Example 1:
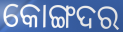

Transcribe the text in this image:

କୋଙ୍ଗଦର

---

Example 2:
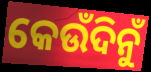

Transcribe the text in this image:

କେଉଁଦିନୁଁ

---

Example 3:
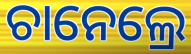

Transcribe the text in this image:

ଚାନେଲ୍ରେ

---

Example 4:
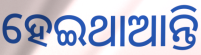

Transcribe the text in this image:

ହେଇଥାଆନ୍ତି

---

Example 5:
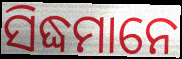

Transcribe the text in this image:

ସିଦ୍ଧମାନେ